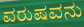
ವರುಷವನು